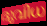
ദുവിധ